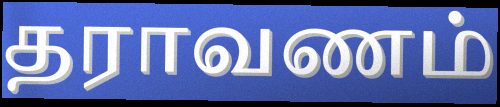
தராவணம்